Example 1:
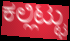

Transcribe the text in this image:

ಕಲ್ಲಿಟ್ಟು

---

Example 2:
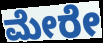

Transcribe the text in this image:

ಮೇರೇ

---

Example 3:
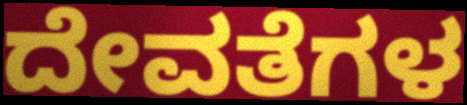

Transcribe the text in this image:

ದೇವತೆಗಳ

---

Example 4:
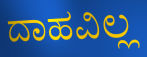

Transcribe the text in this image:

ದಾಹವಿಲ್ಲ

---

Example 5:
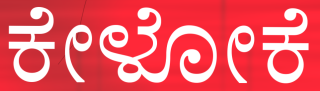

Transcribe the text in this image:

ಕೇಳೋಕೆ